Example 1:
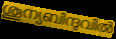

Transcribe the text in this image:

ശൂന്യബിന്ദുവിൽ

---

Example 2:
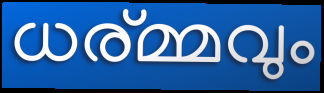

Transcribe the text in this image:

ധര്മ്മവും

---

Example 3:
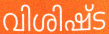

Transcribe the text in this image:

വിശിഷ്ട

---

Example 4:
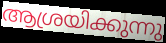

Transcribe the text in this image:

ആശ്രയിക്കുന്നു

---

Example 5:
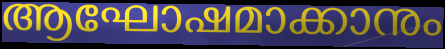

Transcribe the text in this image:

ആഘോഷമാക്കാനും